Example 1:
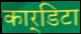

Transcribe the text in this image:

कार्डिटा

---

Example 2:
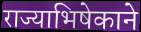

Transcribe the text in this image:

राज्याभिषेकाने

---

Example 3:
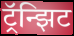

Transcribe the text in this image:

ट्रॅन्झिट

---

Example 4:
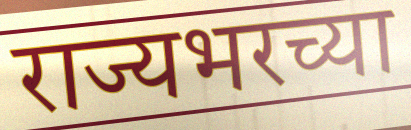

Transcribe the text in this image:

राज्यभरच्या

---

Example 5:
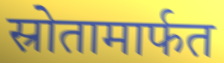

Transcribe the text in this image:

स्रोतामार्फत